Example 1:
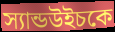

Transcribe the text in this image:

স্যান্ডউইচকে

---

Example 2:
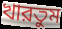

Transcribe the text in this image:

খারতুম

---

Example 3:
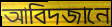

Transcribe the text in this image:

আবিদজানে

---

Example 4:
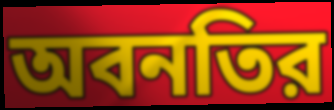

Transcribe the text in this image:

অবনতির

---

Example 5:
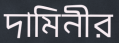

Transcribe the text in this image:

দামিনীর